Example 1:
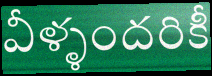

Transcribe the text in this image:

వీళ్ళందరికీ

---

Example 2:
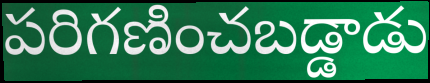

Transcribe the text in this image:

పరిగణించబడ్డాడు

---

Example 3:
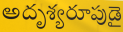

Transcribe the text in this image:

అదృశ్యరూపుడై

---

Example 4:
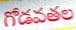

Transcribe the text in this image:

గోడవతల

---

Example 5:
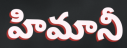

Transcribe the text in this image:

హిమానీ